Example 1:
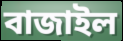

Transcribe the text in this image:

বাজাইল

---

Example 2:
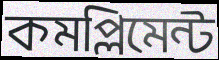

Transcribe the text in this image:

কমপ্লিমেন্ট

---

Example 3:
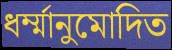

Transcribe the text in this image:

ধর্ম্মানুমোদিত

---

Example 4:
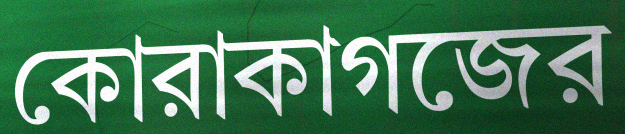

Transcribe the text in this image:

কোরাকাগজের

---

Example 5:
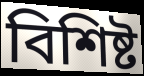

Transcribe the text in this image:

বিশিষ্ট